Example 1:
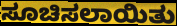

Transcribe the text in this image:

ಸೂಚಿಸಲಾಯಿತು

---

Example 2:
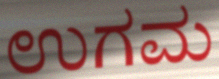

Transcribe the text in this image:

ಉಗಮ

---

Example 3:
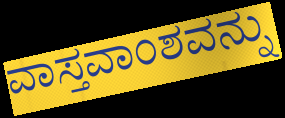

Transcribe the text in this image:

ವಾಸ್ತವಾಂಶವನ್ನು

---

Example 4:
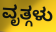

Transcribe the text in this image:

ವೃತ್ಗಳು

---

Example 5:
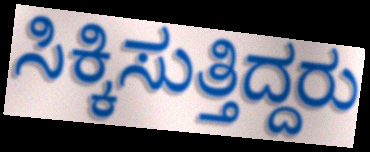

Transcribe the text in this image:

ಸಿಕ್ಕಿಸುತ್ತಿದ್ದರು